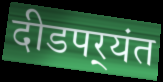
दीडपर्यंत